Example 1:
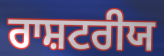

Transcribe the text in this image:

ਰਾਸ਼ਟਰੀਯ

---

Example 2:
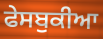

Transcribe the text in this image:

ਫੇਸਬੁਕੀਆ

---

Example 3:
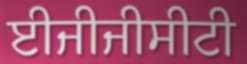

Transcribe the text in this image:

ਈਜੀਜੀਸੀਟੀ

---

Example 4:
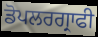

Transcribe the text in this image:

ਡੋਪਲਰਗ੍ਰਾਫੀ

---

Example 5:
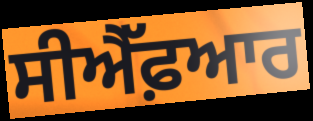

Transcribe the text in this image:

ਸੀਐੱਫ਼ਆਰ